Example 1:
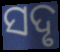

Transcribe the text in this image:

ସଦୃ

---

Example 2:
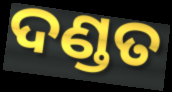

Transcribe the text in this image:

ଦଣ୍ଡତ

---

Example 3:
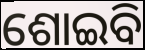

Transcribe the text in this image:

ଶୋଇବି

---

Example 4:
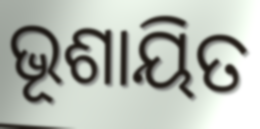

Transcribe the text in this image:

ଭୂଶାୟିତ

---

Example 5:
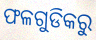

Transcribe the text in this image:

ଫଳଗୁଡିକରୁ